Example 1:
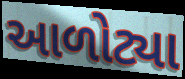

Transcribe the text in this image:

આળોટ્યા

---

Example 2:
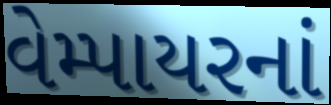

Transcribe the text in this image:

વેમ્પાયરનાં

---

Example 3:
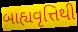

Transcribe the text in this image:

બાહ્યવૃત્તિથી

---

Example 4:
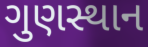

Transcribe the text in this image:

ગુણસ્થાન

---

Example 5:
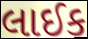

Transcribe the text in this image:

લાઈક